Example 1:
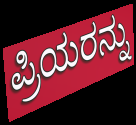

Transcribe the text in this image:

ಪ್ರಿಯರನ್ನು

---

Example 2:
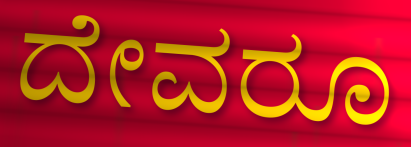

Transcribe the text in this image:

ದೇವರೂ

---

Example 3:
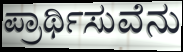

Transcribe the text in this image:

ಪ್ರಾರ್ಥಿಸುವೆನು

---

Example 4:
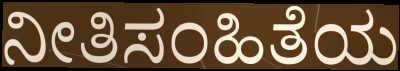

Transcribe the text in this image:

ನೀತಿಸಂಹಿತೆಯ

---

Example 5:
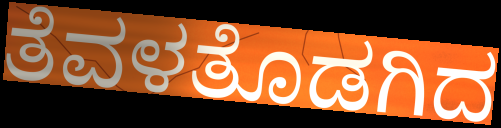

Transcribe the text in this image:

ತೆವಳತೊಡಗಿದ